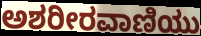
ಅಶರೀರವಾಣಿಯು